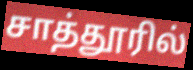
சாத்தூரில்